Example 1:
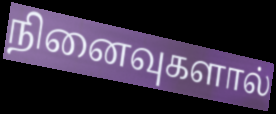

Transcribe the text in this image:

நினைவுகளால்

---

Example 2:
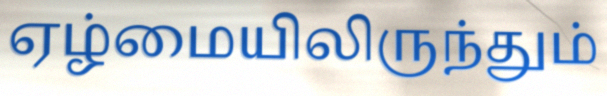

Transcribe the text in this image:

ஏழ்மையிலிருந்தும்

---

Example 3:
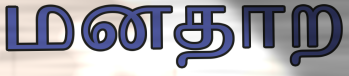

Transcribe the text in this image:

மனதாற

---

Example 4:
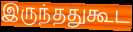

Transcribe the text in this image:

இருந்ததுகூட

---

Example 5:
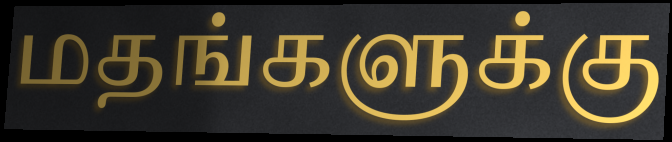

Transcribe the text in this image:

மதங்களுக்கு